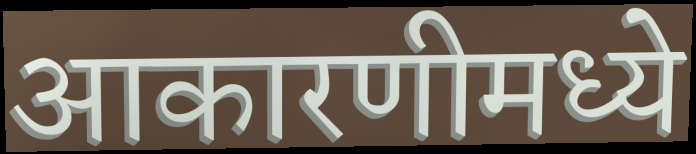
आकारणीमध्ये